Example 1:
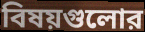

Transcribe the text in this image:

বিষয়গুলোর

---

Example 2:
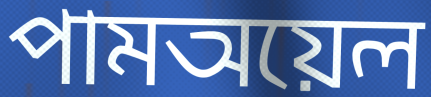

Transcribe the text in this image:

পামঅয়েল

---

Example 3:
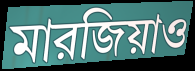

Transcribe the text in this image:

মারজিয়াও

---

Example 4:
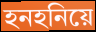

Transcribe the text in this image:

হনহনিয়ে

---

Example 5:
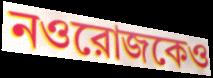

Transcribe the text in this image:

নওরোজকেও